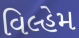
વિલ્હેમ